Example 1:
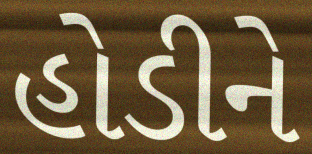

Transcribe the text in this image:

હોડીને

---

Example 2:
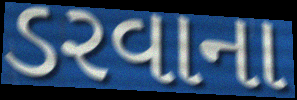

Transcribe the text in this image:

ડરવાના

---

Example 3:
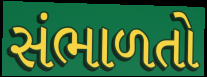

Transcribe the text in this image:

સંભાળતો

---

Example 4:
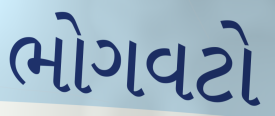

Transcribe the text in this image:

ભોગવટો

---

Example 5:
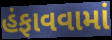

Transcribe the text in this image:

હંફાવવામાં